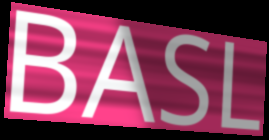
BASL